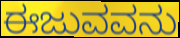
ಈಜುವವನು